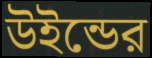
উইন্ডের